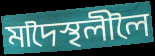
মাদৈস্থলীলৈ